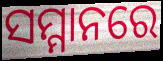
ସମ୍ମାନରେ